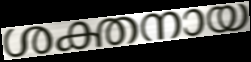
ശക്തനായ